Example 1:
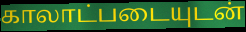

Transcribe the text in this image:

காலாட்படையுடன்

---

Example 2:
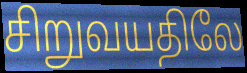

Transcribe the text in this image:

சிறுவயதிலே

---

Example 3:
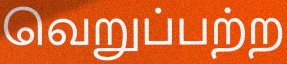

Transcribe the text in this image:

வெறுப்பற்ற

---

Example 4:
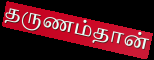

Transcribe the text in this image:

தருணம்தான்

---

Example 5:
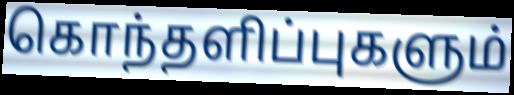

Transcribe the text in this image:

கொந்தளிப்புகளும்